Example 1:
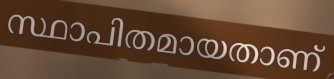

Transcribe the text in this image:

സ്ഥാപിതമായതാണ്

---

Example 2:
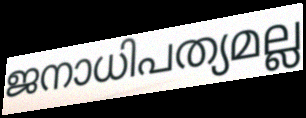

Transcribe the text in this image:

ജനാധിപത്യമല്ല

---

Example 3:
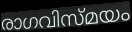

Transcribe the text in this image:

രാഗവിസ്മയം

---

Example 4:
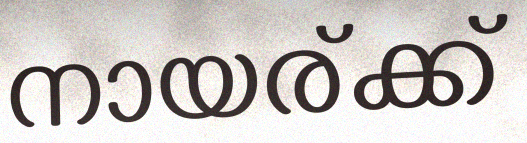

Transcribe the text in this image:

നായര്ക്ക്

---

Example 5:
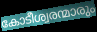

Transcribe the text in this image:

കോടീശ്വരന്മാരും